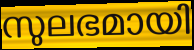
സുലഭമായി